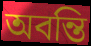
অবন্তি